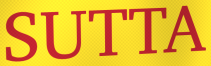
SUTTA